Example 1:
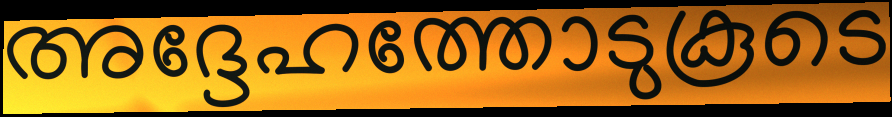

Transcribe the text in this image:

അദ്ദേഹത്തോടുകൂടെ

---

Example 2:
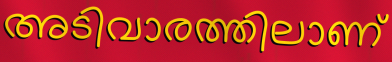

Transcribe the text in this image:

അടിവാരത്തിലാണ്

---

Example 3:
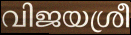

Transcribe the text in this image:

വിജയശ്രീ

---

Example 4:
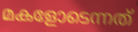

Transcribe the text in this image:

മകളോടെന്നത്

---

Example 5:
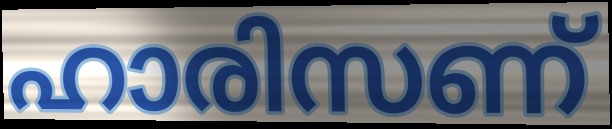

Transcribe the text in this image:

ഹാരിസണ്